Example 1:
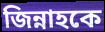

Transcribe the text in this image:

জিন্নাহকে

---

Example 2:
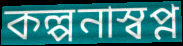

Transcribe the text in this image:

কল্পনাস্বপ্ন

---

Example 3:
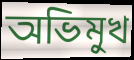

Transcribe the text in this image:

অভিমুখ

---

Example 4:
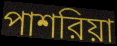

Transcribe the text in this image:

পাশরিয়া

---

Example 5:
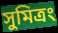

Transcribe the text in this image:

সুমিত্রং